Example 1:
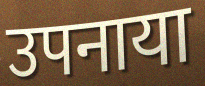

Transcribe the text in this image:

उपनाया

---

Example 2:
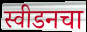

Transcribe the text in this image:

स्वीडनचा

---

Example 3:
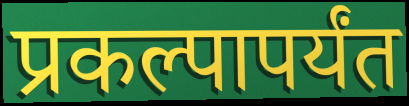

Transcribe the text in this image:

प्रकल्पापर्यंत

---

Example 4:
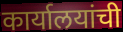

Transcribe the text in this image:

कार्यालयांची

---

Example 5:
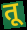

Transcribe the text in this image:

तू